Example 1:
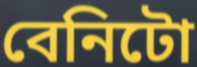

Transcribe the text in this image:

বেনিটো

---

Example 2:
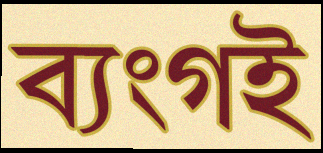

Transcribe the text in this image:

ব্যংগই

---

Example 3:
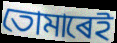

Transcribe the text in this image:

তোমাৰেই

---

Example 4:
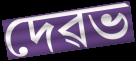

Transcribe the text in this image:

দেৱভ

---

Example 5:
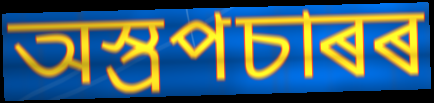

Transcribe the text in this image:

অস্ত্ৰপচাৰৰ